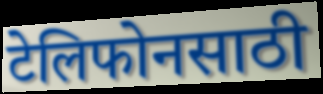
टेलिफोनसाठी